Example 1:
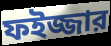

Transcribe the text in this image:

ফইজ্জার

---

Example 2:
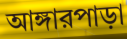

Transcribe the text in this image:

আঙ্গারপাড়া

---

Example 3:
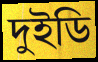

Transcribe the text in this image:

দুইডি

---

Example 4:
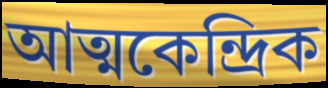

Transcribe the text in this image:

আত্মকেন্দ্রিক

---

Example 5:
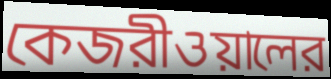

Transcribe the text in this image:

কেজরীওয়ালের